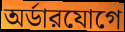
অর্ডারযোগে